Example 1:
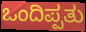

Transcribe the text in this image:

ಒಂದಿಪ್ಪತು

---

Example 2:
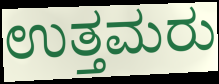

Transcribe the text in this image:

ಉತ್ತಮರು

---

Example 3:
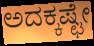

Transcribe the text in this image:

ಅದಕ್ಕಷ್ಟೇ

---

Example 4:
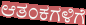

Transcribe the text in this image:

ಆತಂಕಗಳಿಗೆ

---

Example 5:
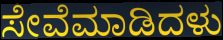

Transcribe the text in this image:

ಸೇವೆಮಾಡಿದಳು